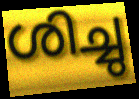
ശിച്ചു